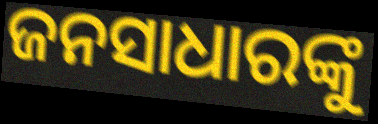
ଜନସାଧାରଙ୍କୁ